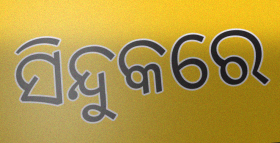
ସିନ୍ଦୁକରେ